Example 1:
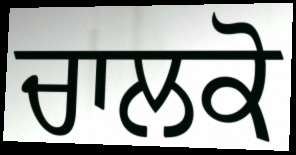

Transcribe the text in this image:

ਚਾਲਕੋ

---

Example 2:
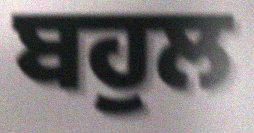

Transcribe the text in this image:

ਬਹੁਲ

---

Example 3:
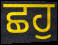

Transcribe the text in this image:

ਛਹੁ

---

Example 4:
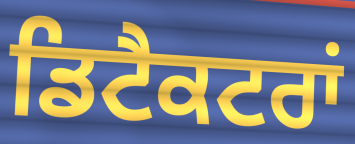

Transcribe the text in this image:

ਡਿਟੈਕਟਰਾਂ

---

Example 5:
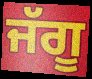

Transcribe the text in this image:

ਜੱਗੂ